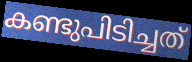
കണ്ടുപിടിച്ചത്